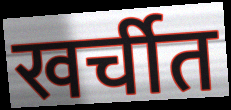
खर्चीत